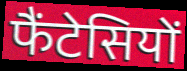
फैंटेसियों